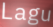
Lagu